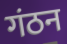
गंठन